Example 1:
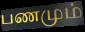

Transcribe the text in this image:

பணமும்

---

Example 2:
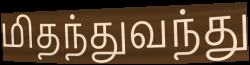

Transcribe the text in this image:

மிதந்துவந்து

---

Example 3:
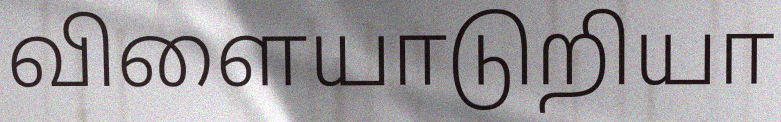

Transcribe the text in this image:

விளையாடுறியா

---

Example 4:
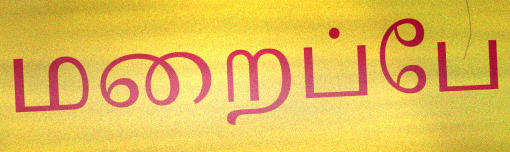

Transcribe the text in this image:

மறைப்பே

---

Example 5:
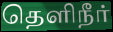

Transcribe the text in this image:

தெளிநீர்